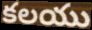
కలయు